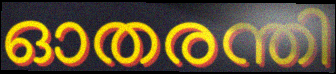
ഓതരന്തി